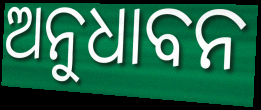
ଅନୁଧାବନ